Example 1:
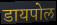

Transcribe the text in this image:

डायपोल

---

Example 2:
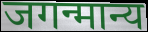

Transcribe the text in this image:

जगन्मान्य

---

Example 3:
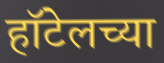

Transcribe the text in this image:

हॉटेलच्या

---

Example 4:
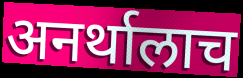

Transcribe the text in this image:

अनर्थालाच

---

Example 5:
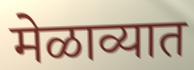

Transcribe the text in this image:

मेळाव्यात